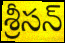
శ్రీసన్